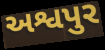
અશ્વપુર